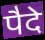
पैदे